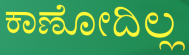
ಕಾಣೋದಿಲ್ಲ